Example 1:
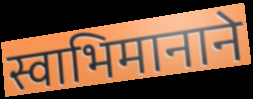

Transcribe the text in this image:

स्वाभिमानाने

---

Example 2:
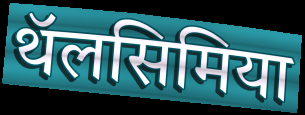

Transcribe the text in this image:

थॅलसिमिया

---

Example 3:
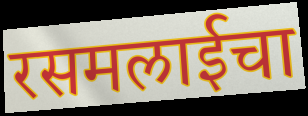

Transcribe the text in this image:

रसमलाईचा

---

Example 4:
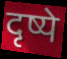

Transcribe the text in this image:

दृष्ये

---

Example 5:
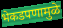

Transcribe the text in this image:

भेकडपणामुळे